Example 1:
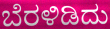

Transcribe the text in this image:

ಬೆರಳಿಡಿದು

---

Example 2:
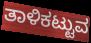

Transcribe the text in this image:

ತಾಳಿಕಟ್ಟುವ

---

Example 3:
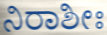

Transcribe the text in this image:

ನಿರಾಶೀಃ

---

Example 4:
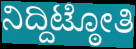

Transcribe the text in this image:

ನಿದ್ದಿಟ್ಠೋತಿ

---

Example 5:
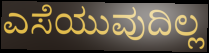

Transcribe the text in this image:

ಎಸೆಯುವುದಿಲ್ಲ